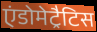
एंडोमेट्रैटिस